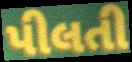
પીલતી